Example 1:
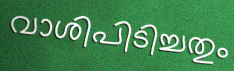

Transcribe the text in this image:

വാശിപിടിച്ചതും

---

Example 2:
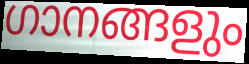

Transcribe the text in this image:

ഗാനങ്ങളും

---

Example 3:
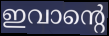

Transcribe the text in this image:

ഇവാന്റെ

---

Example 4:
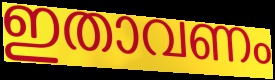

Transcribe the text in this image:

ഇതാവണം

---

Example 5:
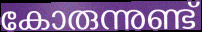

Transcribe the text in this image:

കോരുന്നുണ്ട്